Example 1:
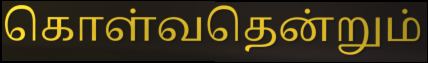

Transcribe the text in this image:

கொள்வதென்றும்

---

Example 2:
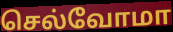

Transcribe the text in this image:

செல்வோமா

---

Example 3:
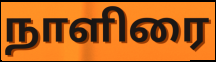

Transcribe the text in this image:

நாளிரை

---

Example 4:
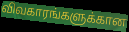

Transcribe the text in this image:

விவகாரங்களுக்கான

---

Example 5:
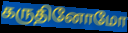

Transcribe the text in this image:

கருதினோமோ